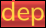
dep